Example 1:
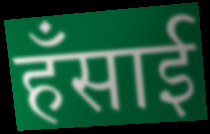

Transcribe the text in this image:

हँसाई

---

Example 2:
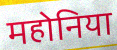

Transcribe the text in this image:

महोनिया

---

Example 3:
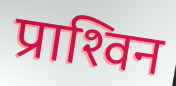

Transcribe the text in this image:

प्राश्विन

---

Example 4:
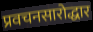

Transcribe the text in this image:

प्रवचनसारोद्धार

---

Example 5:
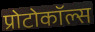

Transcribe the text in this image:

प्रोटोकॉल्स